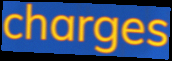
charges